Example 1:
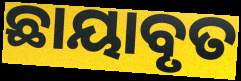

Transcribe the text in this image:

ଛାୟାବୃତ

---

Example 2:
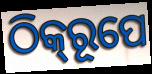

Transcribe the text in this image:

ଠିକ୍‌ରୂପେ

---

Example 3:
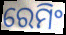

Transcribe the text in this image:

ରେମିଂ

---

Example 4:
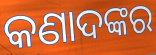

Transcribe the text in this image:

କଣାଦଙ୍କର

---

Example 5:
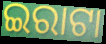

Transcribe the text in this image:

ଇରାଟା